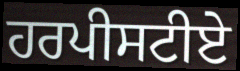
ਹਰਪੀਸਟੀਏ